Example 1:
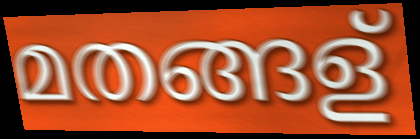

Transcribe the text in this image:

മതങ്ങള്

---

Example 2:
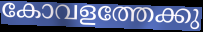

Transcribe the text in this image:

കോവളത്തേക്കു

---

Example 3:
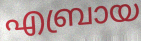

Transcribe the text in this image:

എബ്രായ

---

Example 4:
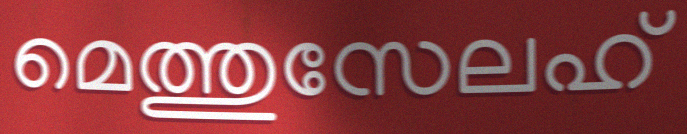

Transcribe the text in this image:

മെത്തുസേലഹ്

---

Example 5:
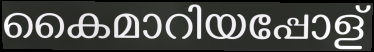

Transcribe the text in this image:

കൈമാറിയപ്പോള്